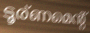
ടൂര്ണമെന്റ്